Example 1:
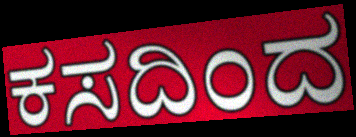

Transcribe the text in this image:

ಕಸದಿಂದ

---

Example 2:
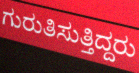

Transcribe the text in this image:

ಗುರುತಿಸುತ್ತಿದ್ದರು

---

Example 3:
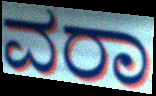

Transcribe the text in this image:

ವರಾ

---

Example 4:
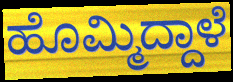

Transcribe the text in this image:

ಹೊಮ್ಮಿದ್ದಾಳೆ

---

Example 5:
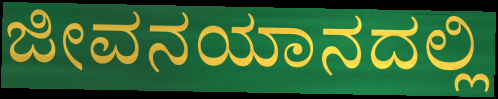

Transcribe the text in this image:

ಜೀವನಯಾನದಲ್ಲಿ